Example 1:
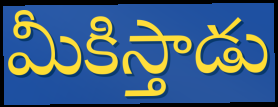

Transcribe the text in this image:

మీకిస్తాడు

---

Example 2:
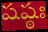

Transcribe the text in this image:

షష్ఠః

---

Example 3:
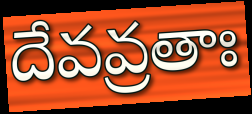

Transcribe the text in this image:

దేవవ్రతాః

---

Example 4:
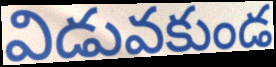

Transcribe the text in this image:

విడువకుండ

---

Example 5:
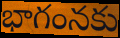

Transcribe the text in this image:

భాగంనకు